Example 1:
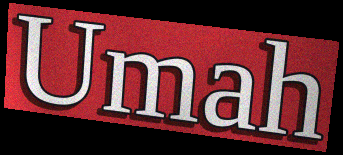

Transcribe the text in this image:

Umah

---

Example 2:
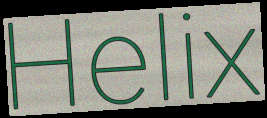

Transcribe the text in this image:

Helix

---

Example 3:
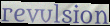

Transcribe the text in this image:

revulsion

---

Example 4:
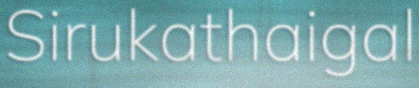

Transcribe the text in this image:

Sirukathaigal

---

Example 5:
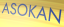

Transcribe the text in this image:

ASOKAN